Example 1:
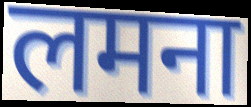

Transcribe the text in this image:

लमना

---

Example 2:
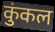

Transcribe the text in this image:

कुंकल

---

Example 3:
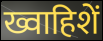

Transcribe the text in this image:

ख्वाहिशें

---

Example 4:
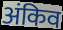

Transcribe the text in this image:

अंकिव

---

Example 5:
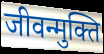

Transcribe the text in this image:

जीवन्मुक्ति